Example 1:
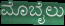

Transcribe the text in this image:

ಮೊಬೈಲು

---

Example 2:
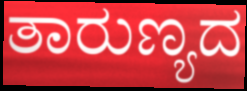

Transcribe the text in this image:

ತಾರುಣ್ಯದ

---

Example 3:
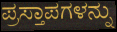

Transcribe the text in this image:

ಪ್ರಸ್ತಾಪಗಳನ್ನು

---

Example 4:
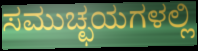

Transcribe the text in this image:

ಸಮುಚ್ಛಯಗಳಲ್ಲಿ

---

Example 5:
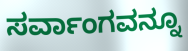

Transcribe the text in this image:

ಸರ್ವಾಂಗವನ್ನೂ